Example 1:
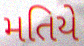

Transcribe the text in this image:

મતિયે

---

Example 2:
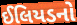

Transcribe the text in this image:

ઈલિયડનો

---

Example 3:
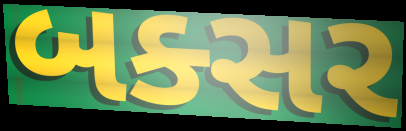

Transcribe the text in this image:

બક્સર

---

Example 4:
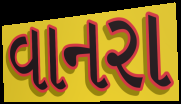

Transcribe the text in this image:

વાનરા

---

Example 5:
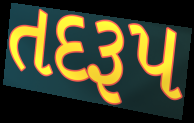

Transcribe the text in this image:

તદરૂપ